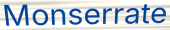
Monserrate